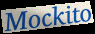
Mockito